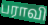
பராவி